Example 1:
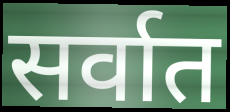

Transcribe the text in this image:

सर्वात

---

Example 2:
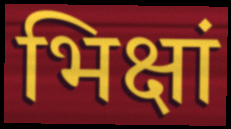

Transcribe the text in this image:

भिक्षां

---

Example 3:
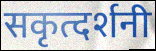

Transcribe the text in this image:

सकृत्दर्शनी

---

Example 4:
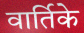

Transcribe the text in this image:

वार्तिके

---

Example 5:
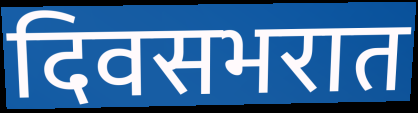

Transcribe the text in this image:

दिवसभरात